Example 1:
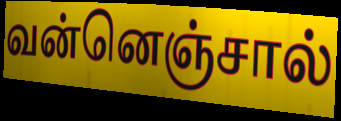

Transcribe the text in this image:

வன்னெஞ்சால்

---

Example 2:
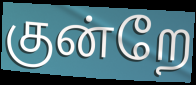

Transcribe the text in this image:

குன்றே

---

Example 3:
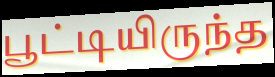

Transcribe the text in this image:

பூட்டியிருந்த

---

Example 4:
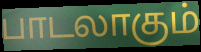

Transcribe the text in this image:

பாடலாகும்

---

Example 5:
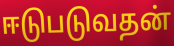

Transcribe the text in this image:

ஈடுபடுவதன்